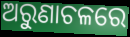
ଅରୁଣାଚଳରେ